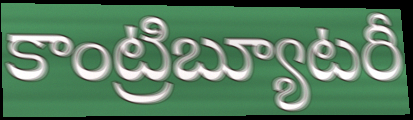
కాంట్రిబ్యూటరీ